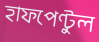
হাফপেণ্টুল